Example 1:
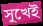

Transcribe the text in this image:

সুখেই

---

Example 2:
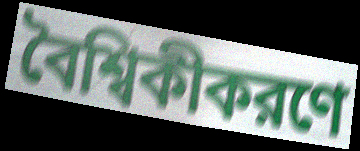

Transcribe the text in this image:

বৈশ্বিকীকরণে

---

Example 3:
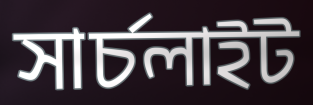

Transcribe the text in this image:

সার্চলাইট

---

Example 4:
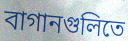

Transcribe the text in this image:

বাগানগুলিতে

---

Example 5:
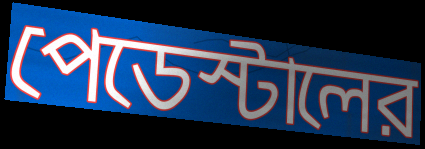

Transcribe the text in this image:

পেডেস্টালের